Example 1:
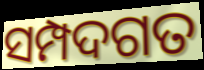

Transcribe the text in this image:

ସମ୍ପଦଗତ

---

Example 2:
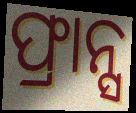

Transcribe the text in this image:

ଫ୍ରାନ୍ସ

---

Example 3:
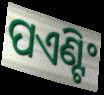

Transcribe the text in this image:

ପଏଣ୍ଟିଂ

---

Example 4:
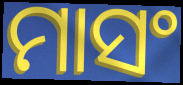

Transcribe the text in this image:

ମାସଂ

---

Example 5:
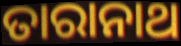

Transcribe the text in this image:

ତାରାନାଥ